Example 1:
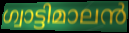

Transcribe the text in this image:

ഗ്വാട്ടിമാലൻ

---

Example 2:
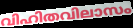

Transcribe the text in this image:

വിഹിതവിലാസം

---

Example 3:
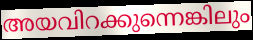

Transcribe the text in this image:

അയവിറക്കുന്നെങ്കിലും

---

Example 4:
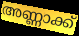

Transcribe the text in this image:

അണ്ണാക്ക്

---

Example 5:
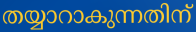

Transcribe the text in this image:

തയ്യാറാകുന്നതിന്